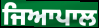
ਜਿਆਪਾਲ